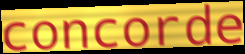
concorde